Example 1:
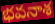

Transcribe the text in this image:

భవనాశ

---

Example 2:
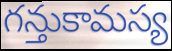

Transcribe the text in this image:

గన్తుకామస్య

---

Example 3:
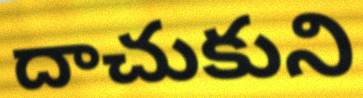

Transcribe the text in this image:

దాచుకుని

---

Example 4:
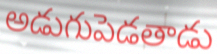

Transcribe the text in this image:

అడుగుపెడతాడు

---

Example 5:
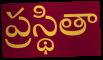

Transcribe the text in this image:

ప్రస్థితా